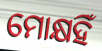
ମୋକ୍ଷହିଁ